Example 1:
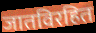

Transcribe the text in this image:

जातविरहित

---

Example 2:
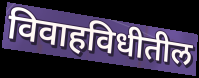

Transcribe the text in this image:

विवाहविधीतील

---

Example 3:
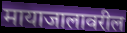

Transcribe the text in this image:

मायाजालावरील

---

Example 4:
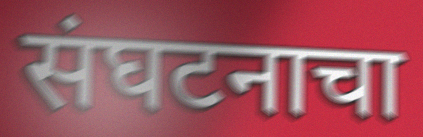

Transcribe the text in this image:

संघटनाचा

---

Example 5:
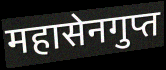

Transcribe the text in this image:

महासेनगुप्त